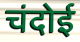
चंदोई